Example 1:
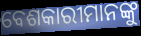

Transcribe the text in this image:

ବେଶକାରୀମାନଙ୍କୁ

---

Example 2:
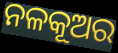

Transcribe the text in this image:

ନଳକୂଅର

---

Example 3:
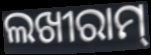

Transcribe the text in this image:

ଲଖୀରାମ୍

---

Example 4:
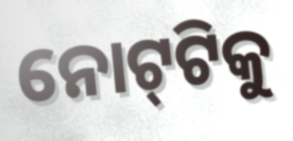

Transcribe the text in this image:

ନୋଟ୍‌ଟିକୁ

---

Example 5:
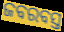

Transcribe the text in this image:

ଜବରବସ୍ତ